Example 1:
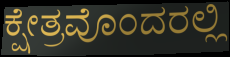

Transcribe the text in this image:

ಕ್ಷೇತ್ರವೊಂದರಲ್ಲಿ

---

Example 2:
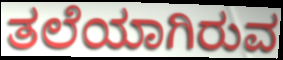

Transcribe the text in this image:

ತಲೆಯಾಗಿರುವ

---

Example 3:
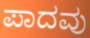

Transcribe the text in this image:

ಪಾದವು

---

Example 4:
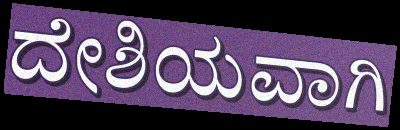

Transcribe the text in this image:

ದೇಶಿಯವಾಗಿ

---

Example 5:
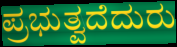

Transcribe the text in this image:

ಪ್ರಭುತ್ವದೆದುರು